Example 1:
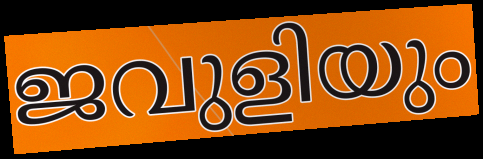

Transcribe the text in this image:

ജവുളിയും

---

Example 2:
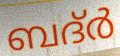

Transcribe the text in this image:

ബദ്ർ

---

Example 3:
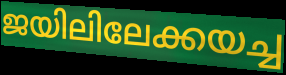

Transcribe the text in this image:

ജയിലിലേക്കയച്ച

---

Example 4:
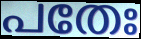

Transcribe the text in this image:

പതേഃ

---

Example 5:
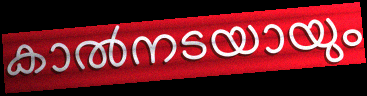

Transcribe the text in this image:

കാൽനടയായും